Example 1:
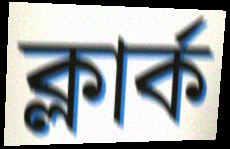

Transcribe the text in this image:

ক্লাৰ্ক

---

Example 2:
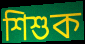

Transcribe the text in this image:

শিশুক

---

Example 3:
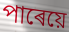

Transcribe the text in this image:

পাৰেয়ে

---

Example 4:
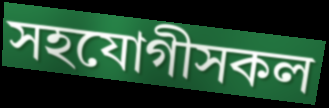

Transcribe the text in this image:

সহযোগীসকল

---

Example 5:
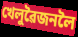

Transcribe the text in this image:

খেলুৱৈজনলৈ